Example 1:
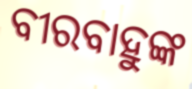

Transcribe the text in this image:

ବୀରବାହୁଙ୍କ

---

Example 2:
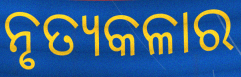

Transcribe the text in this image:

ନୃତ୍ୟକଳାର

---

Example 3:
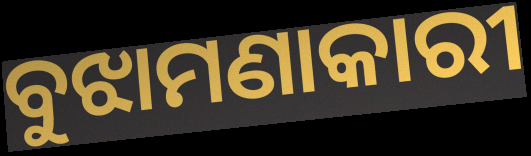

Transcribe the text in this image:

ବୁଝାମଣାକାରୀ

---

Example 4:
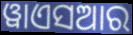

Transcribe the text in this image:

ୱାଏସଆର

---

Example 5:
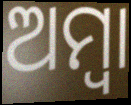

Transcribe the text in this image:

ଅମ୍ବା